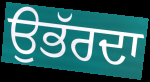
ਉਭੱਰਦਾ